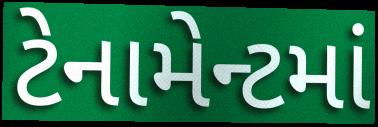
ટેનામેન્ટમાં